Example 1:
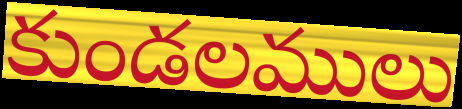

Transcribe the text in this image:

కుండలములు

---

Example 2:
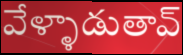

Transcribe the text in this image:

వేళ్ళాడుతావ్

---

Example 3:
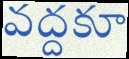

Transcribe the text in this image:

వద్దకూ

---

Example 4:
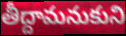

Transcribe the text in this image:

తీద్దామనుకుని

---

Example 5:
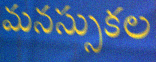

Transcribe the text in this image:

మనస్సుకల